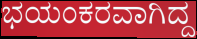
ಭಯಂಕರವಾಗಿದ್ದ